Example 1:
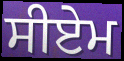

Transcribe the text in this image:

ਸੀਏਮ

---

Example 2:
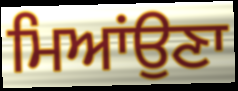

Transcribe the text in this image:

ਮਿਆਂਉਣਾ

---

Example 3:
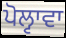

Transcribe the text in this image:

ਪੋਲ੍ਟਾਵਾ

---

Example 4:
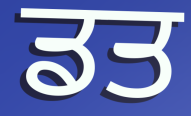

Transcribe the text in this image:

ਡਤ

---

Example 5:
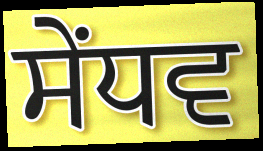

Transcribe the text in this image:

ਸੇਂਧਵ